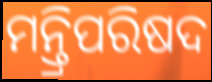
ମନ୍ତ୍ରିପରିଷଦ